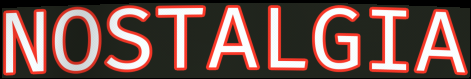
NOSTALGIA